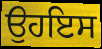
ਉਹਇਸ